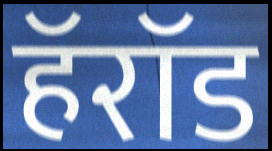
हॅरॉड